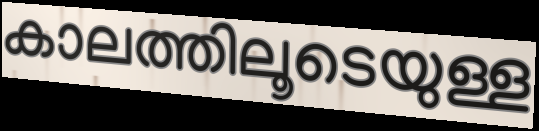
കാലത്തിലൂടെയുള്ള